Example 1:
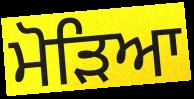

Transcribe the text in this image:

ਮੋੜਿਆ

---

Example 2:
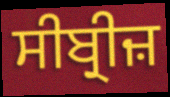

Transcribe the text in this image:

ਸੀਬ੍ਰੀਜ਼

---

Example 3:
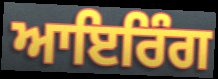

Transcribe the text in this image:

ਆਇਰਿੰਗ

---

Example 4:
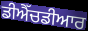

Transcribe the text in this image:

ਡੀਐੱਚਡੀਆਰ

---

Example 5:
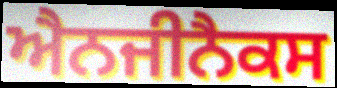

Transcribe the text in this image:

ਐਨਜੀਨੈਕਸ